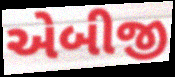
એબીજી